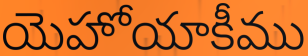
యెహోయాకీము